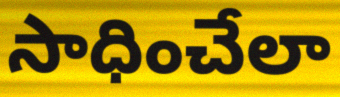
సాధించేలా